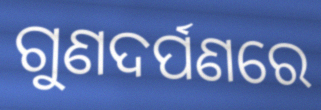
ଗୁଣଦର୍ପଣରେ